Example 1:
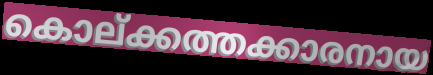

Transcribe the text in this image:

കൊല്ക്കത്തക്കാരനായ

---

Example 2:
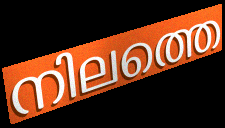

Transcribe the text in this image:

നിലത്തെ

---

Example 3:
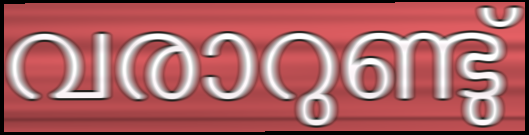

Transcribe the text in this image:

വരാറുണ്ടു്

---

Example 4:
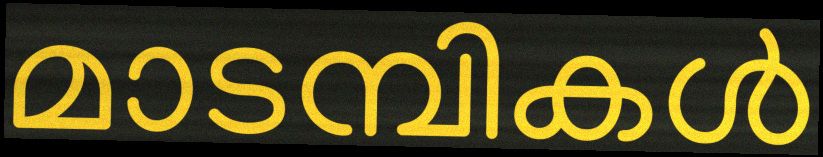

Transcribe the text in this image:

മാടമ്പികൾ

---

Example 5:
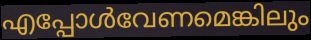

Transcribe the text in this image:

എപ്പോൾവേണമെങ്കിലും